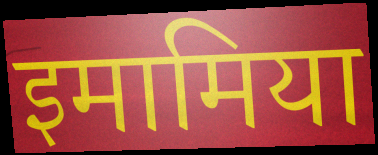
इमामिया